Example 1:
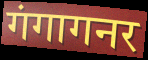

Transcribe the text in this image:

गंगागनर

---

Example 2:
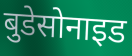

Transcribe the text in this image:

बुडेसोनाइड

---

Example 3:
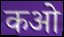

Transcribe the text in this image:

कओ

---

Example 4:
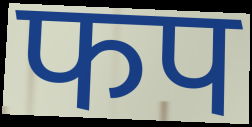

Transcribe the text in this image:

फप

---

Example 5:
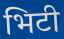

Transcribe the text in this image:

भिटी